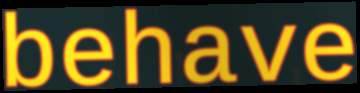
behave